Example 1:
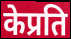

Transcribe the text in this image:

केप्रति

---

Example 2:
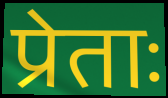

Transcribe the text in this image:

प्रेताः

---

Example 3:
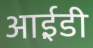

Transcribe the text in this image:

आई़डी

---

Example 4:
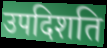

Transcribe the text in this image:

उपदिशति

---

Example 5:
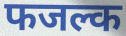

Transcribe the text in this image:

फजल्क